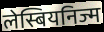
लेस्बियनिज्म